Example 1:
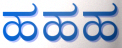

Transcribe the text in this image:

ಹಹಹ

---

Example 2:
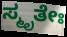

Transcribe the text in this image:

ಸ್ಮೃತೇಃ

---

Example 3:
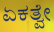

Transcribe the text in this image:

ಏಕತ್ವೇ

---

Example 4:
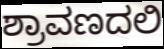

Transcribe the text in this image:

ಶ್ರಾವಣದಲಿ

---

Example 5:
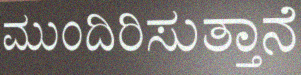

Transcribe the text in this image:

ಮುಂದಿರಿಸುತ್ತಾನೆ